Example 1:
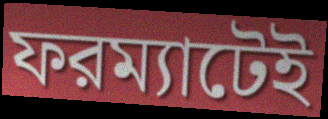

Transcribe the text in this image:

ফরম্যাটেই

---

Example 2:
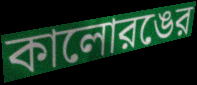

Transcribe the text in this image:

কালোরঙের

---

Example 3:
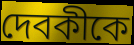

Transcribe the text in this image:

দেবকীকে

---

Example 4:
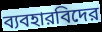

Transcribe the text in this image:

ব্যবহারবিদের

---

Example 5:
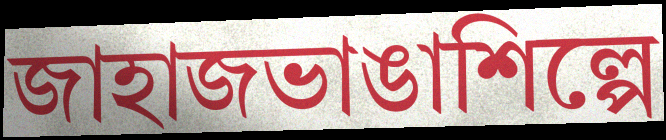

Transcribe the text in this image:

জাহাজভাঙাশিল্পে